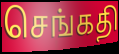
செங்கதி